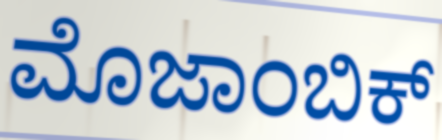
ಮೊಜಾಂಬಿಕ್